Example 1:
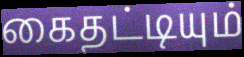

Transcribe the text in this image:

கைதட்டியும்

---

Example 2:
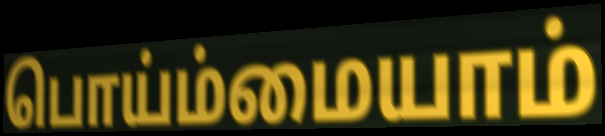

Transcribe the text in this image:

பொய்ம்மையாம்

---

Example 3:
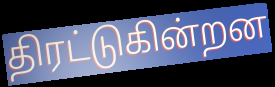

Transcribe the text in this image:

திரட்டுகின்றன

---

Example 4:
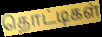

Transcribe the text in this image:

தொட்டிகள்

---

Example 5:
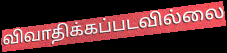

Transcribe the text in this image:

விவாதிக்கப்படவில்லை